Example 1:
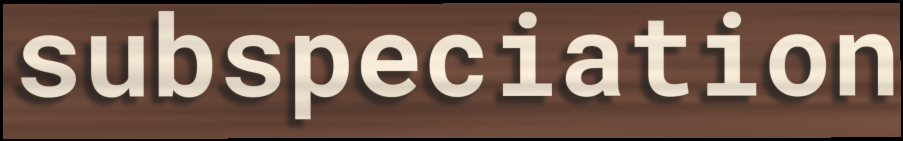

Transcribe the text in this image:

subspeciation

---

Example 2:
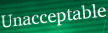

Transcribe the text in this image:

Unacceptable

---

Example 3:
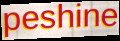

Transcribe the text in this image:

peshine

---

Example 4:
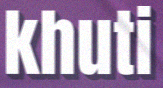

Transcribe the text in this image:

khuti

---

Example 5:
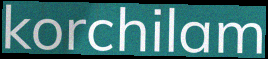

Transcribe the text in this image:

korchilam